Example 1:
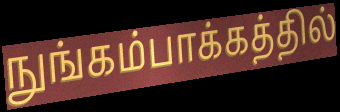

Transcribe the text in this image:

நுங்கம்பாக்கத்தில்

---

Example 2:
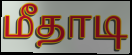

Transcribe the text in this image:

மீதாடி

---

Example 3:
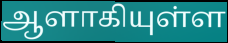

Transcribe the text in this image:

ஆளாகியுள்ள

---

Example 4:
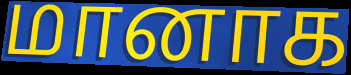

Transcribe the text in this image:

மானாக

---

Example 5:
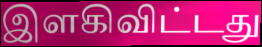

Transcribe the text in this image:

இளகிவிட்டது